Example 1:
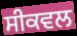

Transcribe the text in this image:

ਸੀਕਵਲ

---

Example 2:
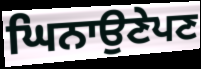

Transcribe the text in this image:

ਘਿਨਾਉਣੇਪਣ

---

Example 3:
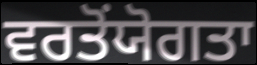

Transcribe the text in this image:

ਵਰਤੋਂਯੋਗਤਾ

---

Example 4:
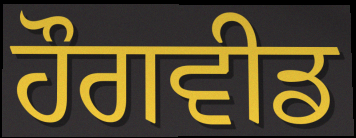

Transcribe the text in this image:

ਹੌਗਵੀਡ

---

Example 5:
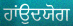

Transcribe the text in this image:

ਹਾਂਉਦਯੋਗ